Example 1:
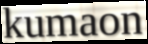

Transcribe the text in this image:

kumaon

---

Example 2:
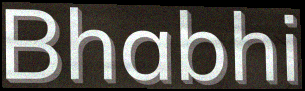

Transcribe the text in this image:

Bhabhi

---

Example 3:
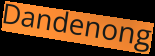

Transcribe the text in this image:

Dandenong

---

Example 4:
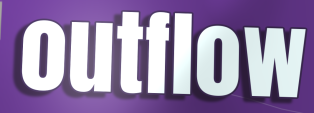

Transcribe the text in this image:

outflow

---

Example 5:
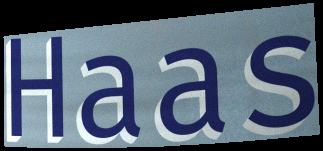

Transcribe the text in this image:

Haas